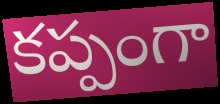
కప్పంగా